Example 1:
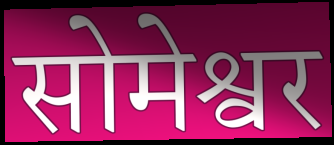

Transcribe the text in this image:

सोमेश्वर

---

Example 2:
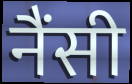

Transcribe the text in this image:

नैंसी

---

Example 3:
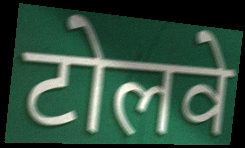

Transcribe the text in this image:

टोलवे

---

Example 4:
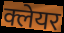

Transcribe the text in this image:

क्‍लेयर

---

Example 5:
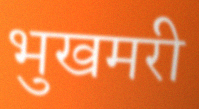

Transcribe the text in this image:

भुखमरी